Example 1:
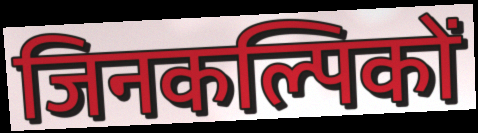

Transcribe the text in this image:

जिनकल्पिकों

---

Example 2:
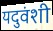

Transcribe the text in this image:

यदुवंशी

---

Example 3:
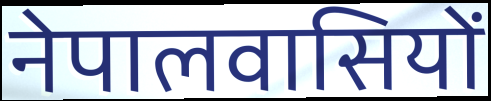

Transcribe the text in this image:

नेपालवासियों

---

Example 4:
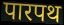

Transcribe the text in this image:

पारपथ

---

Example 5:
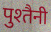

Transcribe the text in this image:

पुश्‍तैनी